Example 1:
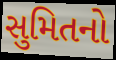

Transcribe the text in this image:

સુમિતનો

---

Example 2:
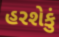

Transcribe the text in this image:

હરશેકું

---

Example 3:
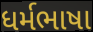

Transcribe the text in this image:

ધર્મભાષા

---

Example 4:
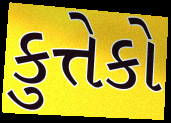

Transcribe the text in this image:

કુત્તેકો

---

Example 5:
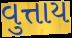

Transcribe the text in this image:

વુત્તાય